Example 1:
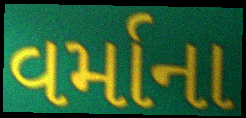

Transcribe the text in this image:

વર્માના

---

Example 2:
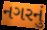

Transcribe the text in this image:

નગરનું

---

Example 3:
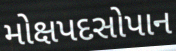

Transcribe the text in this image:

મોક્ષપદસોપાન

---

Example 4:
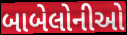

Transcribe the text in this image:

બાબેલોનીઓ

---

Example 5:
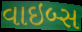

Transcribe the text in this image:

વાઇબ્સ